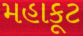
મહાકૂટ